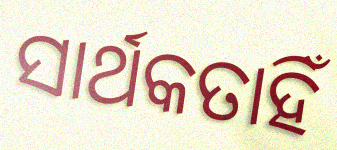
ସାର୍ଥକତାହିଁ